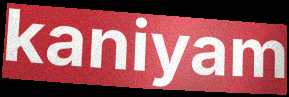
kaniyam